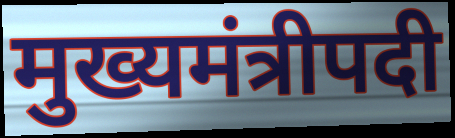
मुख्यमंत्रीपदी